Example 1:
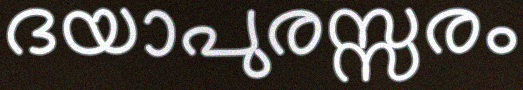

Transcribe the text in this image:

ദയാപുരസ്സരം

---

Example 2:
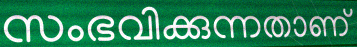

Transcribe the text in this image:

സംഭവിക്കുന്നതാണ്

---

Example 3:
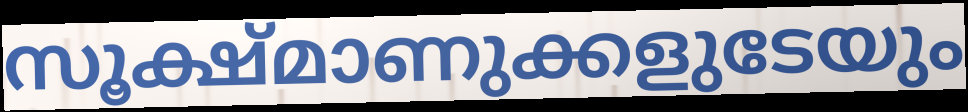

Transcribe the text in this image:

സൂക്ഷ്മാണുക്കളുടേയും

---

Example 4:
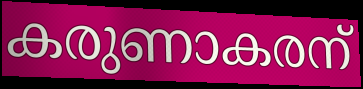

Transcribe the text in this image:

കരുണാകരന്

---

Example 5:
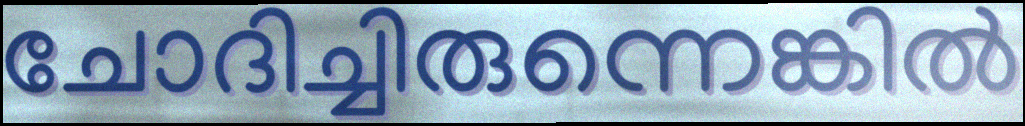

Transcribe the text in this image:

ചോദിച്ചിരുന്നെങ്കിൽ